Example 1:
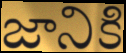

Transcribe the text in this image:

జానికి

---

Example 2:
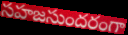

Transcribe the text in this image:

సహజసుందరంగా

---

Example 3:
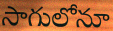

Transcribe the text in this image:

సాగులోనూ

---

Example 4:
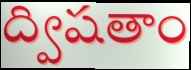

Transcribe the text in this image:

ద్విషతాం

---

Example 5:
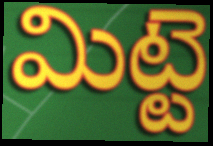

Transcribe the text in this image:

మిట్టె